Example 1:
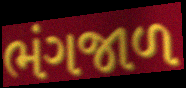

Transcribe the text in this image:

ભંગજાળ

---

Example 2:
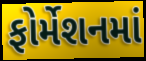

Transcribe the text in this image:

ફોર્મેશનમાં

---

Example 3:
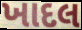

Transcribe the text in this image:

ખાદલ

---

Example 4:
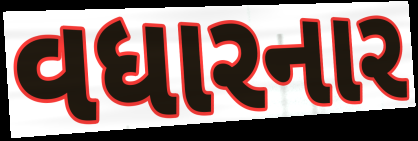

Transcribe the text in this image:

વધારનાર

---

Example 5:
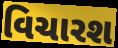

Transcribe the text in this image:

વિચારશ